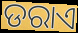
ଡରାଏ